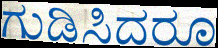
ಗುಡಿಸಿದರೂ